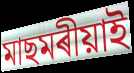
মাছমৰীয়াই